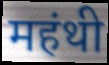
महंथी